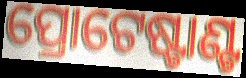
ପ୍ରୋଟେଷ୍ଟାଣ୍ଟ